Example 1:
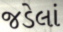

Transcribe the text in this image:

જડેલાં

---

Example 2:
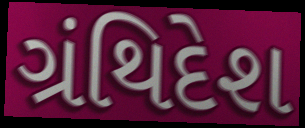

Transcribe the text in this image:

ગ્રંથિદેશ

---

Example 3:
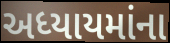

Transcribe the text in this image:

અધ્યાયમાંના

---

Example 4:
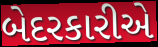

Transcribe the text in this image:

બેદરકારીએ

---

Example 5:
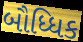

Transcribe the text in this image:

બૌધ્ધિક